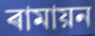
ৰামায়ন